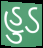
હુડ